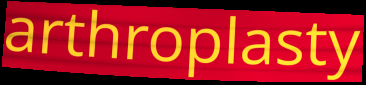
arthroplasty